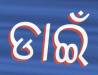
ଡାଇଁ